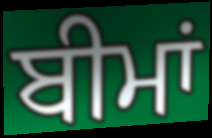
ਬੀਮਾਂ